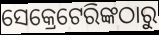
ସେକ୍ରେଟେରିଙ୍କଠାରୁ